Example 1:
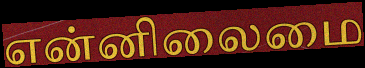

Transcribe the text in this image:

என்னிலைமை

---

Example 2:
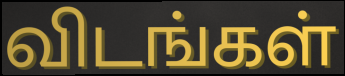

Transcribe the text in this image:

விடங்கள்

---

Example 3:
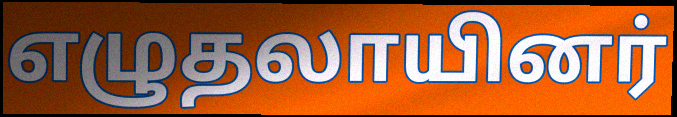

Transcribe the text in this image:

எழுதலாயினர்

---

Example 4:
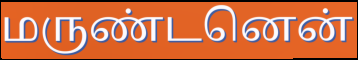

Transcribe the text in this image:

மருண்டனென்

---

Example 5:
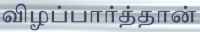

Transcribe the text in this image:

விழப்பார்த்தான்